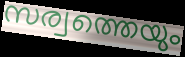
സര്വത്തെയും